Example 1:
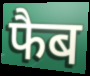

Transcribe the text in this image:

फैब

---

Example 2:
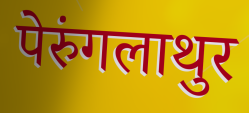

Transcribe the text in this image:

पेरुंगलाथुर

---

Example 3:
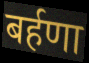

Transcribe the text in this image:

बर्हणा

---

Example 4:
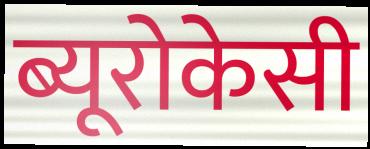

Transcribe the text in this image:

ब्यूरोकेसी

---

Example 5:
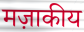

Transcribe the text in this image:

मज़ाकीय